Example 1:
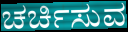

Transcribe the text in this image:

ಚರ್ಚಿಸುವ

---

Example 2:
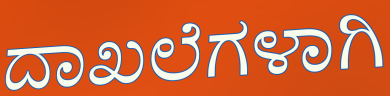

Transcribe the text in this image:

ದಾಖಲೆಗಳಾಗಿ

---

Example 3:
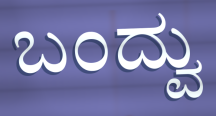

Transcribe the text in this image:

ಬಂದ್ವು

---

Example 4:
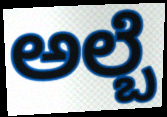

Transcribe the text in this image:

ಅಲ್ಬೆ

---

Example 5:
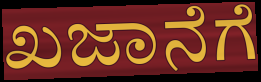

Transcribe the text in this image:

ಖಜಾನೆಗೆ